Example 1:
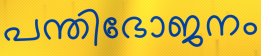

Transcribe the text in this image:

പന്തിഭോജനം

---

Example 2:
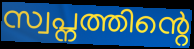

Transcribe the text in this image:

സ്വപ്നത്തിന്റെ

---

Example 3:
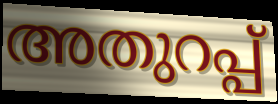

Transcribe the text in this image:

അതുറപ്പ്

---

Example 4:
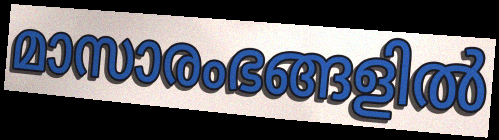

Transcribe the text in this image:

മാസാരംഭങ്ങളിൽ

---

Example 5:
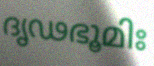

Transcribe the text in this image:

ദൃഢഭൂമിഃ